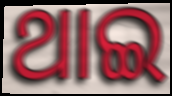
ଥାଇ